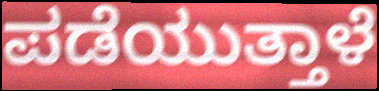
ಪಡೆಯುತ್ತಾಳೆ